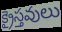
క్రైస్తవులు